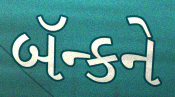
બૅન્કને